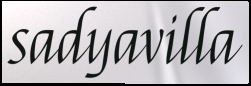
sadyavilla